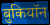
बुकियॉन